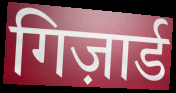
गिज़ार्ड